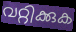
വറ്റിക്കുക